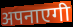
अपनाएगी